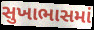
સુખાભાસમાં